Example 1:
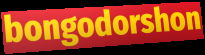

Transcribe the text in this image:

bongodorshon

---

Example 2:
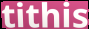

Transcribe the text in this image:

tithis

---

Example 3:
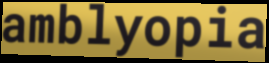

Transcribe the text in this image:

amblyopia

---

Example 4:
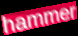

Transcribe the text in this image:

hammer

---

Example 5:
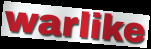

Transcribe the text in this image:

warlike